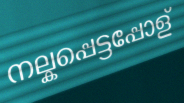
നല്കപ്പെട്ടപ്പോള്